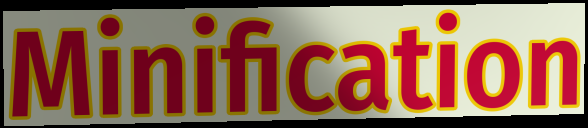
Minification